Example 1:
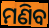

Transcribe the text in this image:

ମଣିବ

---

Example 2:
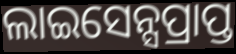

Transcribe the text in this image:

ଲାଇସେନ୍ସପ୍ରାପ୍ତ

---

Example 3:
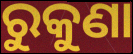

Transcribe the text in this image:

ରୁକୁଣା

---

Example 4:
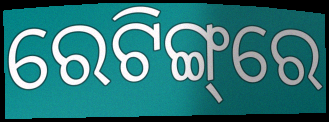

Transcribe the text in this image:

ରେଟିଙ୍ଗ୍‌ରେ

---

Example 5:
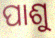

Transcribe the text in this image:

ପାଶୁ